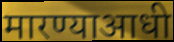
मारण्याआधी